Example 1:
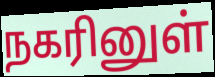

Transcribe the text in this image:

நகரினுள்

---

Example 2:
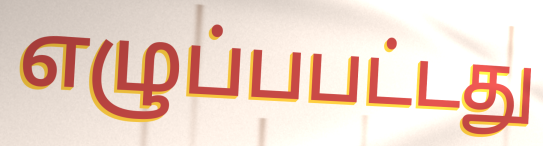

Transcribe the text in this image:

எழுப்பபட்டது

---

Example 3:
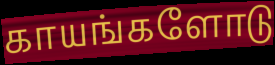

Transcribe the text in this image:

காயங்களோடு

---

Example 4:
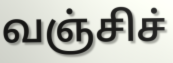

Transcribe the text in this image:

வஞ்சிச்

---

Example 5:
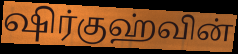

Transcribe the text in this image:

ஷிர்குஹ்வின்